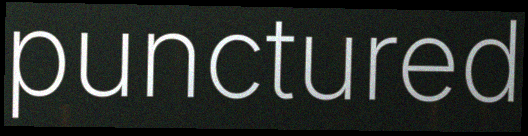
punctured